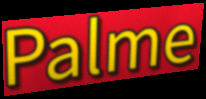
Palme